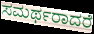
ಸಮರ್ಥರಾದರೆ